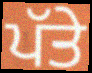
ਪੱਤੇ